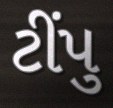
ટીંપુ